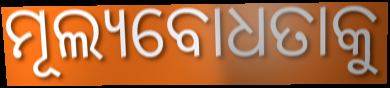
ମୂଲ୍ୟବୋଧତାକୁ